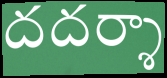
దదర్శా